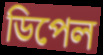
ডিপেল